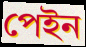
পেইন